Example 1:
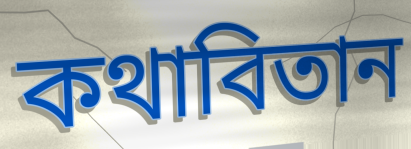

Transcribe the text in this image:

কথাবিতান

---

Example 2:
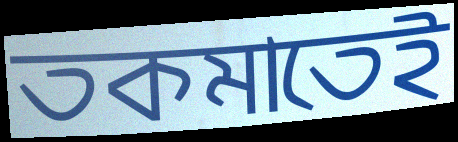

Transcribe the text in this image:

তকমাতেই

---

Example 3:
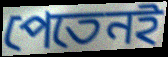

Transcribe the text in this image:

পেতেনই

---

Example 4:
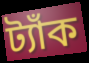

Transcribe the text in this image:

ট্যাঁক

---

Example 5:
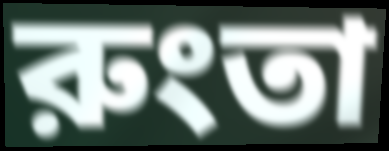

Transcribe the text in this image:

রুংতা